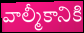
వాల్మీకానికి